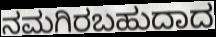
ನಮಗಿರಬಹುದಾದ